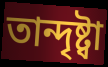
তান্দৃষ্ট্বা